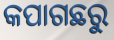
କପାଗଛରୁ